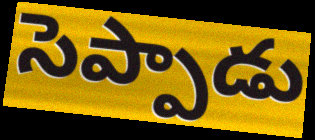
సెప్పాడు